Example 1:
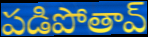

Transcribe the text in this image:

పడిపోతావ్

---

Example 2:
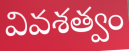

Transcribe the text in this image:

వివశత్వం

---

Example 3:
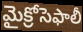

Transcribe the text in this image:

మైక్రోసెఫాలీ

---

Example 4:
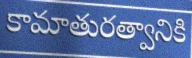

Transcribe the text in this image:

కామాతురత్వానికి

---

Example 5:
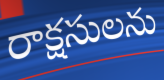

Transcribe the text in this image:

రాక్షసులను